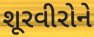
શૂરવીરોને